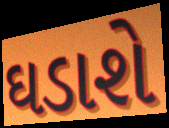
ઘડાશે